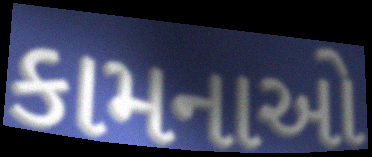
કામનાઓ